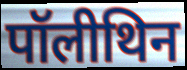
पॉलीथिन